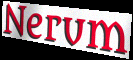
Nerum